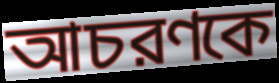
আচরণকে